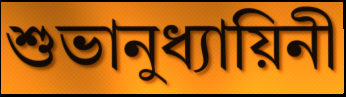
শুভানুধ্যায়িনী